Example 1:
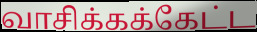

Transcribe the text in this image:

வாசிக்கக்கேட்ட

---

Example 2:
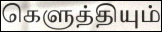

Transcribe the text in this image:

கெளுத்தியும்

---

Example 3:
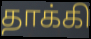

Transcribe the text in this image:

தாக்கி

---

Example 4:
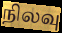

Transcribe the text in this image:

நிலவு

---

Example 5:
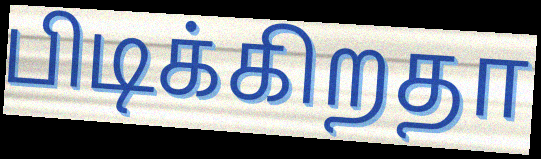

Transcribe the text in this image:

பிடிக்கிறதா